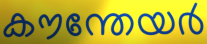
കൗന്തേയർ